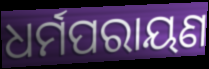
ଧର୍ମପରାୟଣ